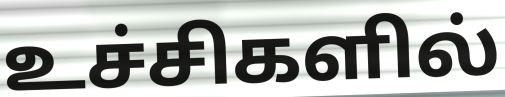
உச்சிகளில்